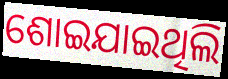
ଶୋଇଯାଇଥିଲି